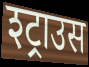
श्ट्राउस